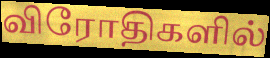
விரோதிகளில்